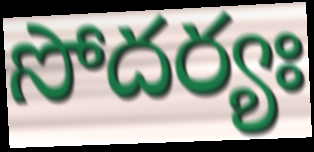
సోదర్యః